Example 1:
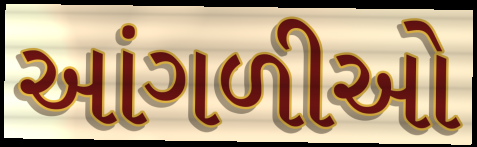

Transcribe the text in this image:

આંગળીઓ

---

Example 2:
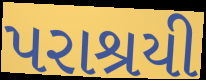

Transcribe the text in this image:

પરાશ્રયી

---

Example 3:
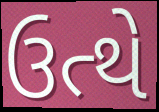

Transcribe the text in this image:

ઉત્થે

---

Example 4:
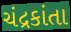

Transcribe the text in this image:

ચંદ્રકાંતા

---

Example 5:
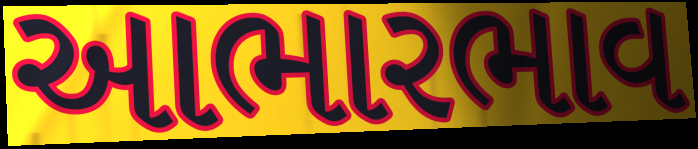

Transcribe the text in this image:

આભારભાવ